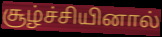
சூழ்ச்சியினால்